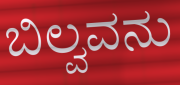
ಬಿಲ್ವವನು